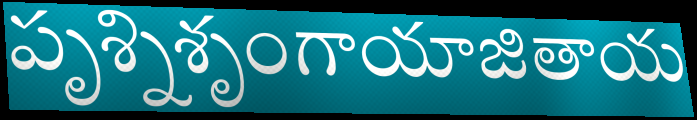
పృశ్నిశృంగాయాజితాయ